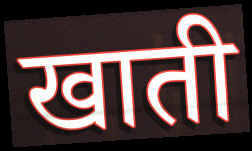
खाती